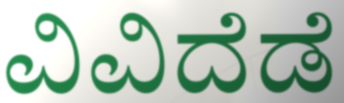
ವಿವಿದೆಡೆ